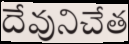
దేవునిచేత